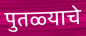
पुतळ्याचे